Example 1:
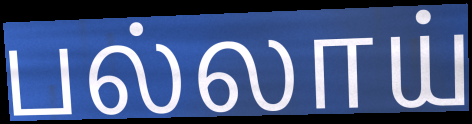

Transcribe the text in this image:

பல்லாய்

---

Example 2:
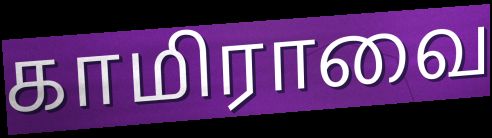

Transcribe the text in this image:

காமிராவை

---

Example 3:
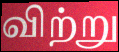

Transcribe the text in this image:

விற்று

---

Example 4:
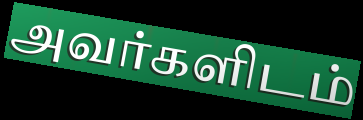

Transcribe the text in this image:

அவர்களிடம்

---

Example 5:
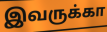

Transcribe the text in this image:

இவருக்கா